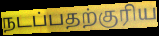
நடப்பதற்குரிய